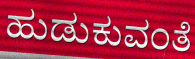
ಹುಡುಕುವಂತೆ